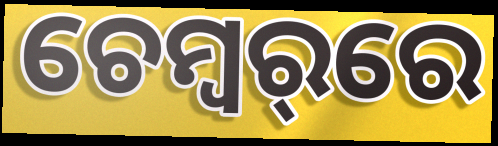
ଚେମ୍ବର୍‌ରେ